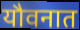
यौवनात